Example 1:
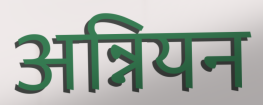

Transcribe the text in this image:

अन्नियन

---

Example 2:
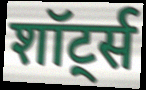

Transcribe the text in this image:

शॉर्ट्स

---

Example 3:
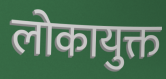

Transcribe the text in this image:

लोकायुक्त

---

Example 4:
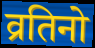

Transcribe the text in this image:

व्रतिनो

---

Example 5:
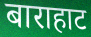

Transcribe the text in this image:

बाराहाट